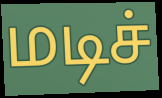
மடிச்